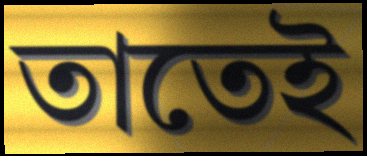
তাতেই